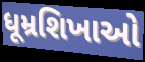
ધૂમ્રશિખાઓ